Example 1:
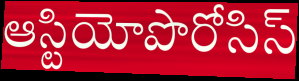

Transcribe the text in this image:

ఆస్టియోపొరోసిస్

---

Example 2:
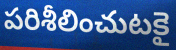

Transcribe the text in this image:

పరిశీలించుటకై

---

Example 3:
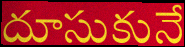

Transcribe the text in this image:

దూసుకునే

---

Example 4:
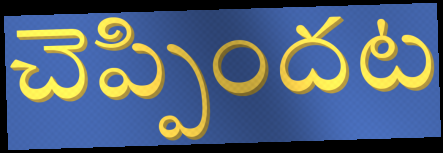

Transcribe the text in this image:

చెప్పిందట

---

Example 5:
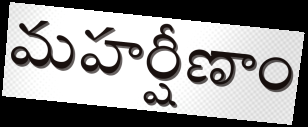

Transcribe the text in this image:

మహర్షీణాం